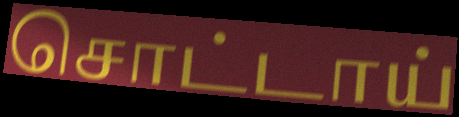
சொட்டாய்